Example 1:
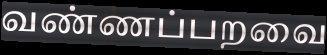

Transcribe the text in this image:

வண்ணப்பறவை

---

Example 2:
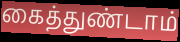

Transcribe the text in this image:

கைத்துண்டாம்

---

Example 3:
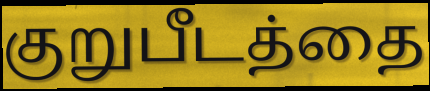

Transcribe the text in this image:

குறுபீடத்தை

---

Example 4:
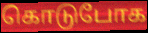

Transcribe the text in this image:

கொடுபோக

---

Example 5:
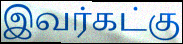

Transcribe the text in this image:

இவர்கட்கு